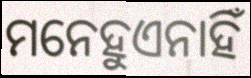
ମନେହୁଏନାହିଁ